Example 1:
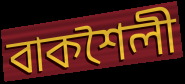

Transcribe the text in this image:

বাকশৈলী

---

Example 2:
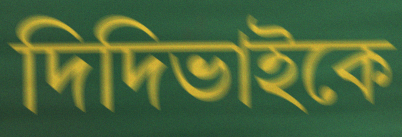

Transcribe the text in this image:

দিদিভাইকে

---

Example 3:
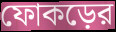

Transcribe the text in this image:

ফোকড়ের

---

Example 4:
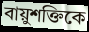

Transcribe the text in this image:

বায়ুশক্তিকে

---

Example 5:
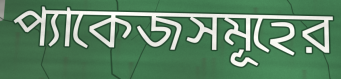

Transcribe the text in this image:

প্যাকেজসমূহের